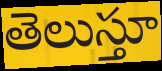
తెలుస్తూ